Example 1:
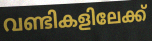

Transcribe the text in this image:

വണ്ടികളിലേക്ക്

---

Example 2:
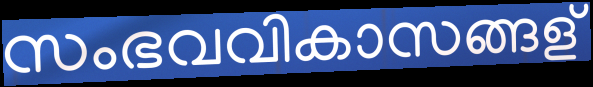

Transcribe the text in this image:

സംഭവവികാസങ്ങള്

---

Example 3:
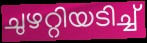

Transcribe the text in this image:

ചുഴറ്റിയടിച്ച്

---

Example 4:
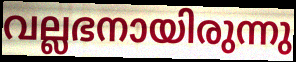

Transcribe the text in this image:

വല്ലഭനായിരുന്നു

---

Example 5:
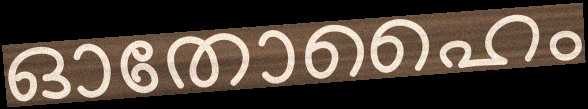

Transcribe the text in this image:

ഓതോഹൈം